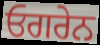
ਓਗਰੇਨ